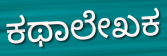
ಕಥಾಲೇಖಕ